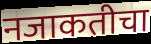
नजाकतीचा